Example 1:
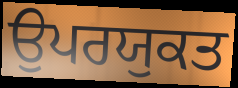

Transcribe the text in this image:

ਉਪਰਯੁਕਤ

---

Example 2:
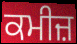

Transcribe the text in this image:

ਕਮੀਜ਼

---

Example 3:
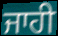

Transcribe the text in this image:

ਜਾਹੀ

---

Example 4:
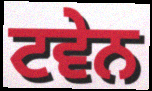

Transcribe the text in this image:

ਟਵੇਨ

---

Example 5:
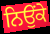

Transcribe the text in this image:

ਨਿਉਂਕੇ